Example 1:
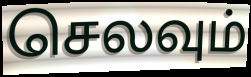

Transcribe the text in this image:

செலவும்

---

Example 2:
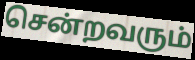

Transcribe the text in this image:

சென்றவரும்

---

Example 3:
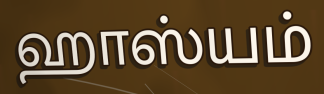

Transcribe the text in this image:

ஹாஸ்யம்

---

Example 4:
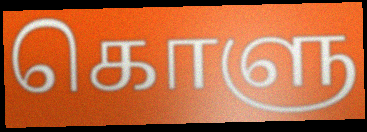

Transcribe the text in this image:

கொளு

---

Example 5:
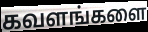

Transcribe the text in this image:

கவளங்களை